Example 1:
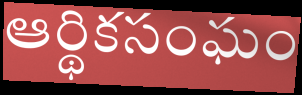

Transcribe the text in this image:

ఆర్థికసంఘం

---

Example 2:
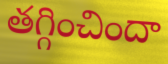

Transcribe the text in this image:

తగ్గించిందా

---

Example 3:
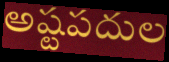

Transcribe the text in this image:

అష్టపదుల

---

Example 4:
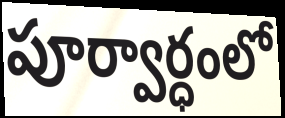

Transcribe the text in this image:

పూర్వార్ధంలో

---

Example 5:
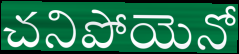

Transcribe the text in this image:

చనిపోయెనో